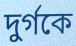
দুর্গকে